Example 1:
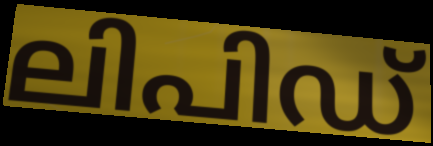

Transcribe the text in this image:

ലിപിഡ്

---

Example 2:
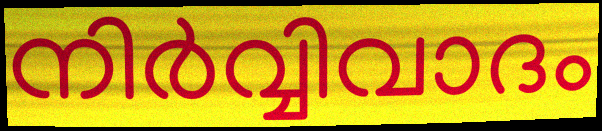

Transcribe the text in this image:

നിർവ്വിവാദം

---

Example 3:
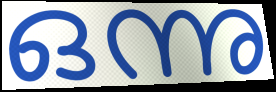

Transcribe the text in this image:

ഒന്നു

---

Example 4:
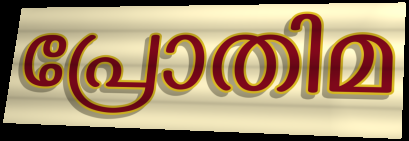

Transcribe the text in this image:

പ്രോതിമ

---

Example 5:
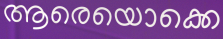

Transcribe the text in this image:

ആരെയൊക്കെ